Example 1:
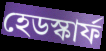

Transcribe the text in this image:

হেডস্কার্ফ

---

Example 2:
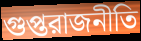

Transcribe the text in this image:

গুপ্তরাজনীতি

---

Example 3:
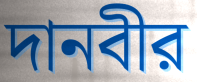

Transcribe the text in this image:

দানবীর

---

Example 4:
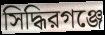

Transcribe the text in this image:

সিদ্ধিরগঞ্জে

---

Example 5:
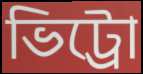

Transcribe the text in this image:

ভিট্রো